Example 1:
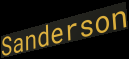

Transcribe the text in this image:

Sanderson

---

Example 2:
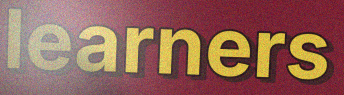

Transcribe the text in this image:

learners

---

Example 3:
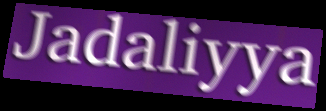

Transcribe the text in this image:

Jadaliyya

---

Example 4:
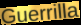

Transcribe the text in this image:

Guerrilla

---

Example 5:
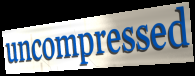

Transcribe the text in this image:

uncompressed